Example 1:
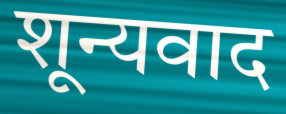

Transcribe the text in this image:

शून्यवाद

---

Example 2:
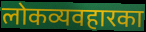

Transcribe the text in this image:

लोकव्यवहारका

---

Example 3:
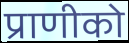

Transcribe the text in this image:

प्राणीको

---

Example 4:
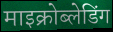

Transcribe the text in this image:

माइक्रोब्लेडिंग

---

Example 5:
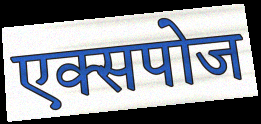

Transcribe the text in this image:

एक्सपोज